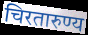
चिरतारुण्य